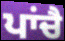
ਪਾਂਚੈ